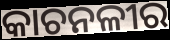
କାଚନଳୀର